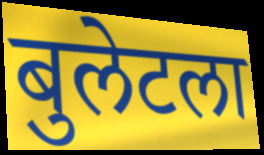
बुलेटला